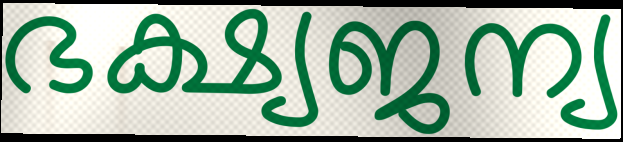
ഭക്ഷ്യജന്യ